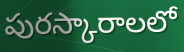
పురస్కారాలలో